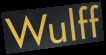
Wulff